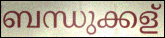
ബന്ധുക്കള്